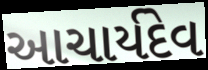
આચાર્યદેવ